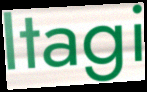
Itagi